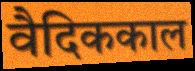
वैदिककाल